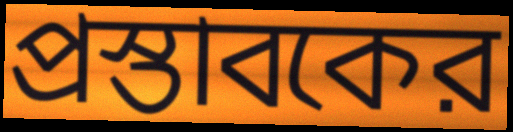
প্রস্তাবকের